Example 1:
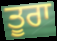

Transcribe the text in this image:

ਤੂਰਾ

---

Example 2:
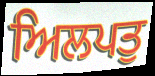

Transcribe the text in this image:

ਅਿਲਪਤੁ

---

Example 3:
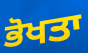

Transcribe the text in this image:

ਭੋਖਤਾ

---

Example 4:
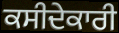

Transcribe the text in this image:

ਕਸੀਦੇਕਾਰੀ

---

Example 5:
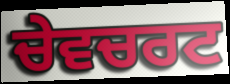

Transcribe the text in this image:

ਚੇਵਚਰਟ